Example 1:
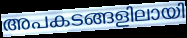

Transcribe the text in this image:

അപകടങ്ങളിലായി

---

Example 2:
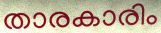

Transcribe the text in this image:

താരകാരിം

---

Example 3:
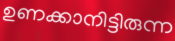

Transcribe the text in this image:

ഉണക്കാനിട്ടിരുന്ന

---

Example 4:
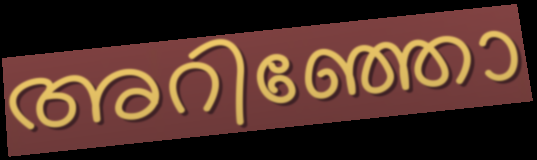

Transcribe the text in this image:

അറിഞ്ഞോ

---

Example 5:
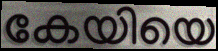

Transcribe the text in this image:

കേയിയെ